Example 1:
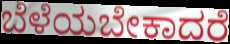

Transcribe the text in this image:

ಬೆಳೆಯಬೇಕಾದರೆ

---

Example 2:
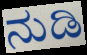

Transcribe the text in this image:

ನುಡಿ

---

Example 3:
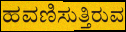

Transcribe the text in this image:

ಹವಣಿಸುತ್ತಿರುವ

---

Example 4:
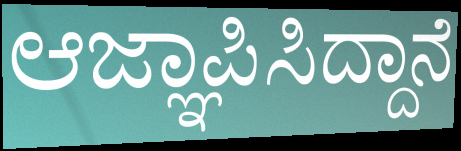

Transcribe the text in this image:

ಆಜ್ಞಾಪಿಸಿದ್ದಾನೆ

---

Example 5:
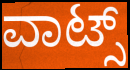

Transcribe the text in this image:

ವಾಟ್ಸ್